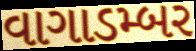
વાગાડમ્બર